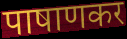
पाषाणकर